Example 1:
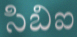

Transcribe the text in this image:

సిబిఐ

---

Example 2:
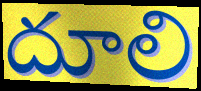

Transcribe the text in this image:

దూలి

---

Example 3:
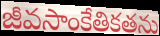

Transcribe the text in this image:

జీవసాంకేతికతను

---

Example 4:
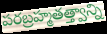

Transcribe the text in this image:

పరబ్రహ్మతత్త్వాన్ని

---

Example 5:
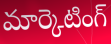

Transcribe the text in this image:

మార్కెటింగ్